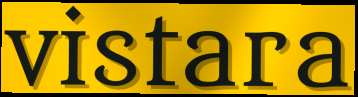
vistara